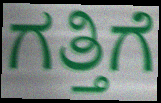
ಗತ್ತಿಗೆ